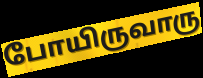
போயிருவாரு